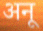
अनू